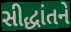
સીદ્ધાંતને